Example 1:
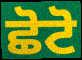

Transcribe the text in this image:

ਛੋਟੋ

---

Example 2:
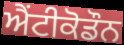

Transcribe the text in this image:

ਐਂਟੀਕੋਡੌਨ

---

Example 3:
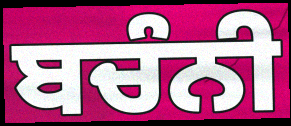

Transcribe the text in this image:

ਬਚੰਨੀ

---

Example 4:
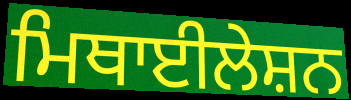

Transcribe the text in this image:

ਮਿਥਾਈਲੇਸ਼ਨ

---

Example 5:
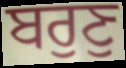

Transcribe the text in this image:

ਬਰੁਣੁ